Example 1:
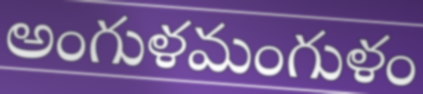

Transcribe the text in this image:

అంగుళమంగుళం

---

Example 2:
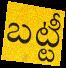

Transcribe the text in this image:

బట్టీ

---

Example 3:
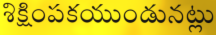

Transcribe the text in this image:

శిక్షింపకయుండునట్లు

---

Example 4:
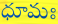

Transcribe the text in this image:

ధూమః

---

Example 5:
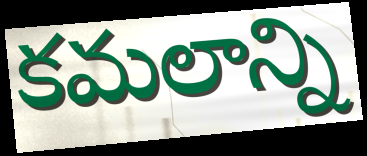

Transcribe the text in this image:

కమలాన్ని